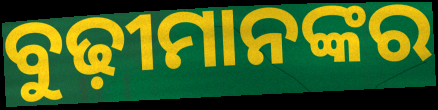
ବୁଢ଼ୀମାନଙ୍କର